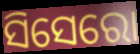
ସିସେରୋ